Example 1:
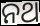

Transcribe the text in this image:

ନଥ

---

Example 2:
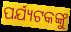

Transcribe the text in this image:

ପର୍ଯ୍ୟଟକଙ୍କୁ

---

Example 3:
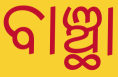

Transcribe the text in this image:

ବାଞ୍ଛା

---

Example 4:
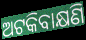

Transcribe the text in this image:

ଅଟକିବାକ୍ଷଣି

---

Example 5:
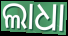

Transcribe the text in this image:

ଲାଧା